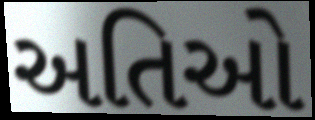
અતિઓ